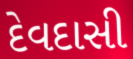
દેવદાસી